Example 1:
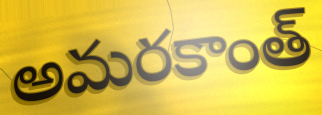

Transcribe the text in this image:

అమరకాంత్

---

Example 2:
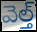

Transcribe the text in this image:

వెల్త్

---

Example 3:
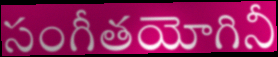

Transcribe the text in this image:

సంగీతయోగినీ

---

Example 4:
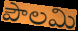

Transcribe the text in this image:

పౌలమి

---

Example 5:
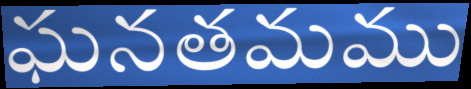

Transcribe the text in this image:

ఘనతమము